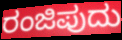
ರಂಜಿಪುದು